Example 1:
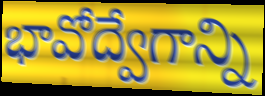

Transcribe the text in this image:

భావోద్వేగాన్ని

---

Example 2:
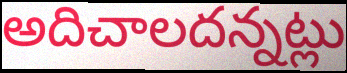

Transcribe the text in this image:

అదిచాలదన్నట్లు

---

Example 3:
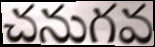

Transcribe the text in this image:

చనుగవ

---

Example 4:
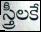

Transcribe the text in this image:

స్త్రీలకే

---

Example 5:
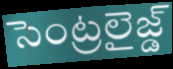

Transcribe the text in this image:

సెంట్రలైజ్డ్